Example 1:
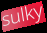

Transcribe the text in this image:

sulky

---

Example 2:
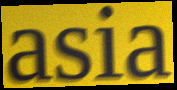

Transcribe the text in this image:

asia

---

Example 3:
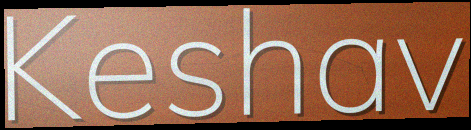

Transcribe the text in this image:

Keshav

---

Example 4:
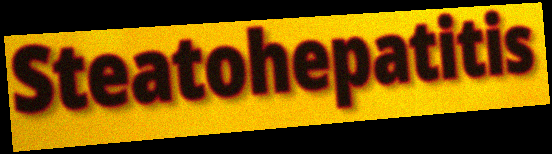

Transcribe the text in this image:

Steatohepatitis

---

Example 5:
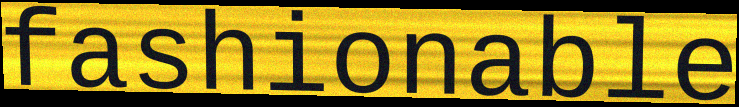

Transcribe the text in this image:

fashionable